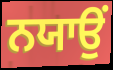
ਨਯਾਉਂ